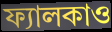
ফ্যালকাও